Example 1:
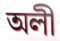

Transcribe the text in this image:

অলী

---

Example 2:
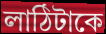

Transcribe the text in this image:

লাঠিটাকে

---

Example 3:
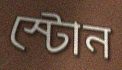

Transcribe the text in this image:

স্টোন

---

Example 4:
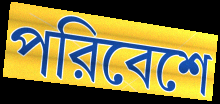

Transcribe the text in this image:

পরিবেশে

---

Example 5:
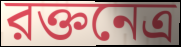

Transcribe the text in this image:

রক্তনেত্র